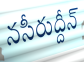
నసీరుద్దీన్